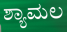
ಶ್ಯಾಮಲ